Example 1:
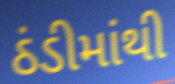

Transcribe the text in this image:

ઠંડીમાંથી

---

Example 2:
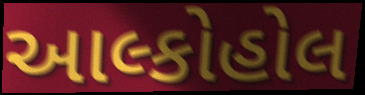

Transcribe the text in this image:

આલ્કોહોલ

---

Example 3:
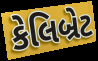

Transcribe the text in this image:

કેલિબ્રેટ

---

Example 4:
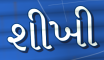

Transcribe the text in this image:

શીખી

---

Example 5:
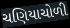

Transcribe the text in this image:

ચણિયાચોળી